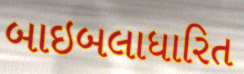
બાઇબલાધારિત